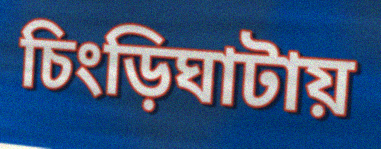
চিংড়িঘাটায়